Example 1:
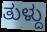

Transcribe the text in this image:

ತುಳ್ದು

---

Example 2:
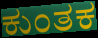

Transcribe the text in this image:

ಕುಂತಕ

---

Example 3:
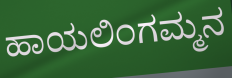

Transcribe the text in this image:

ಹಾಯಲಿಂಗಮ್ಮನ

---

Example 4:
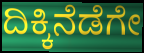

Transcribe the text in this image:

ದಿಕ್ಕಿನೆಡೆಗೇ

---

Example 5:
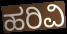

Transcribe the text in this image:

ಹರಿವಿ